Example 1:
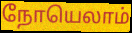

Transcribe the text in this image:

நோயெலாம்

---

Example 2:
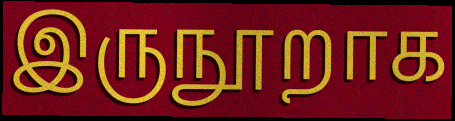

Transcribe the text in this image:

இருநூறாக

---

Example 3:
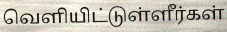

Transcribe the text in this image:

வெளியிட்டுள்ளீர்கள்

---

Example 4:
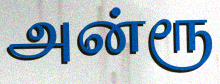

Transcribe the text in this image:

அன்ரூ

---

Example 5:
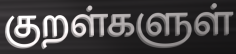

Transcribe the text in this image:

குறள்களுள்